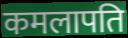
कमलापति